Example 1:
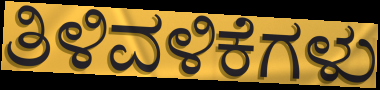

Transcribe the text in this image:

ತಿಳಿವಳಿಕೆಗಳು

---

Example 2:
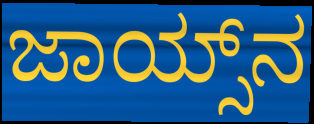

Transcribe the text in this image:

ಜಾಯ್ಸ್‌ನ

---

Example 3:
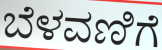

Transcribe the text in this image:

ಬೆಳವಣಿಗೆ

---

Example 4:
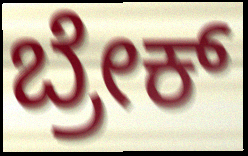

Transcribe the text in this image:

ಬ್ರೇಕ್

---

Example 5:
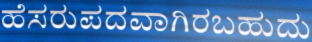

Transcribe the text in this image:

ಹೆಸರುಪದವಾಗಿರಬಹುದು